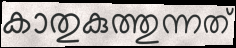
കാതുകുത്തുന്നത്